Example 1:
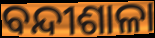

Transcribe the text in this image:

ବନ୍ଦୀଶାଳା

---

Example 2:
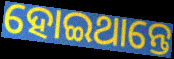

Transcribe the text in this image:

ହୋଇଥାନ୍ତେ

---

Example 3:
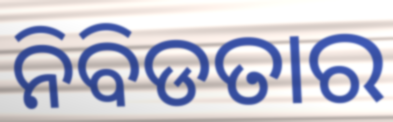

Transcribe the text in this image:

ନିବିଡତାର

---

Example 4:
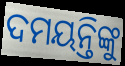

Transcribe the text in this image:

ଦମୟନ୍ତିଙ୍କୁ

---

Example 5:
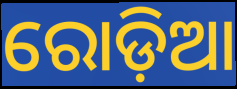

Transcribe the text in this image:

ରୋଡ଼ିଆ